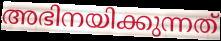
അഭിനയിക്കുന്നത്